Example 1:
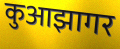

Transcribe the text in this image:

कुआझागर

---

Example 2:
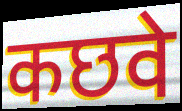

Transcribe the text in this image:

कछवे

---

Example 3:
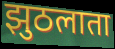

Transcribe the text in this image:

झुठलाता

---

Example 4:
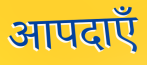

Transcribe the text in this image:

आपदाएँ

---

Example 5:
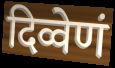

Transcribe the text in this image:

दिव्वेणं